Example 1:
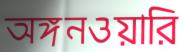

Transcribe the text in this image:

অঙ্গনওয়ারি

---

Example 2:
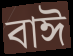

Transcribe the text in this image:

বাঈ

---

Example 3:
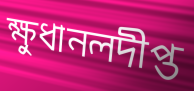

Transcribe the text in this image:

ক্ষুধানলদীপ্ত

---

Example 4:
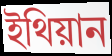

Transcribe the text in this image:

ইথিয়ান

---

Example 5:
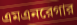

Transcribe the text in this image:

এমএনরেগার